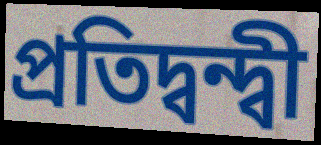
প্রতিদ্বন্দ্বী